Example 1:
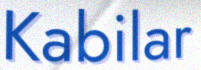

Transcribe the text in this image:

Kabilar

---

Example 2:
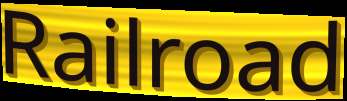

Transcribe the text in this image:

Railroad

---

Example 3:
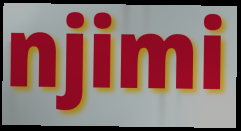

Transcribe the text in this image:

njimi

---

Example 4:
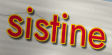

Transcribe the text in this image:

sistine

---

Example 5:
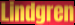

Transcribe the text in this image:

Lindgren